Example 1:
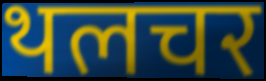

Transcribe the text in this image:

थलचर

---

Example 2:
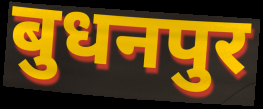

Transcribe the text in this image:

बुधनपुर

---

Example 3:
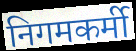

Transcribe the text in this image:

निगमकर्मी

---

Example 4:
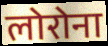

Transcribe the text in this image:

लोरोना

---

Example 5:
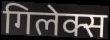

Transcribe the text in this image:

गिलेक्स